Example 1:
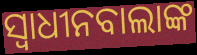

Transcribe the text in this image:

ସ୍ୱାଧୀନବାଲାଙ୍କ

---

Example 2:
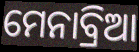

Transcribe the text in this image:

ମେନାବ୍ରିଆ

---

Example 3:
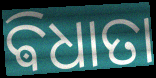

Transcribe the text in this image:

ଵିଧାତା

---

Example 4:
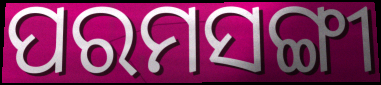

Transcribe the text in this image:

ପରମସଙ୍ଗୀ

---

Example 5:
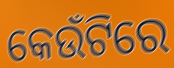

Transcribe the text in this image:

କେଉଁଟିରେ